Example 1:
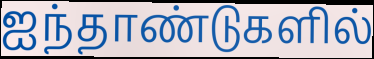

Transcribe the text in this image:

ஐந்தாண்டுகளில்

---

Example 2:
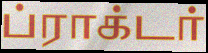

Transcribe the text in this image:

ப்ராக்டர்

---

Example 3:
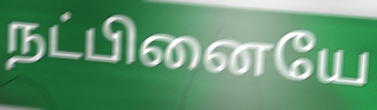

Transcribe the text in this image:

நட்பினையே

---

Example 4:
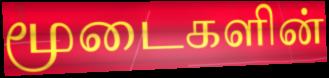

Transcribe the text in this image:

மூடைகளின்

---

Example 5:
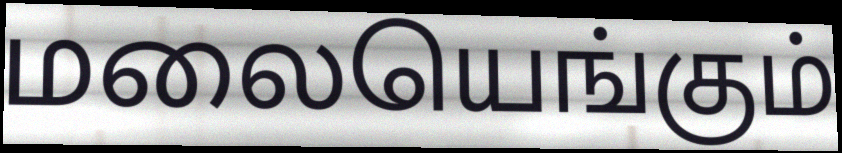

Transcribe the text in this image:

மலையெங்கும்